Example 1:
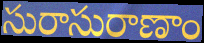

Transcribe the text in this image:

సురాసురాణాం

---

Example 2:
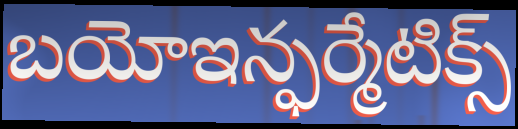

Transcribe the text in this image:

బయోఇన్ఫర్మేటిక్స్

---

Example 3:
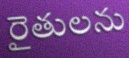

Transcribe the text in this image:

రైతులను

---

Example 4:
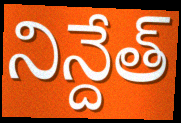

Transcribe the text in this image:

నిన్దేత్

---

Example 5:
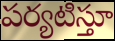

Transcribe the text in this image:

పర్యటిస్తూ